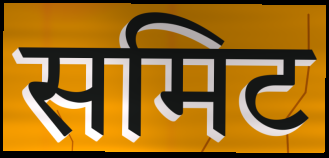
समिट